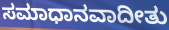
ಸಮಾಧಾನವಾದೀತು